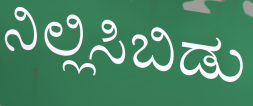
ನಿಲ್ಲಿಸಿಬಿಡು